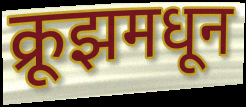
क्रूझमधून